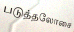
படுத்தலோசை